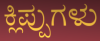
ಕ್ಲಿಪ್ಪುಗಳು